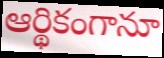
ఆర్థికంగానూ